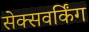
सेक्सवर्किंग